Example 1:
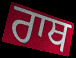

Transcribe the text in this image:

ਰਾਥ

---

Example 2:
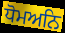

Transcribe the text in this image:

ਧੋਮਅਨਿ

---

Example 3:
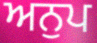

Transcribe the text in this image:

ਅਨੁਪ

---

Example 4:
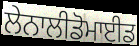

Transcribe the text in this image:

ਲੇਨਾਲੀਡੋਮਾਈਡ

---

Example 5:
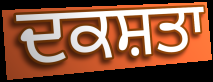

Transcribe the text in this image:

ਦਕਸ਼ਤਾ